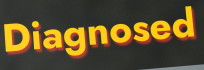
Diagnosed